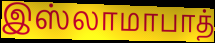
இஸ்லாமாபாத்